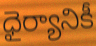
ధైర్యానికీ